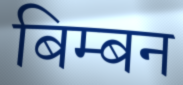
बिम्बन